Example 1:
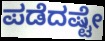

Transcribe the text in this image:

ಪಡೆದಷ್ಟೇ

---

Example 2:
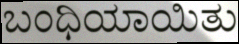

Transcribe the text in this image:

ಬಂಧಿಯಾಯಿತು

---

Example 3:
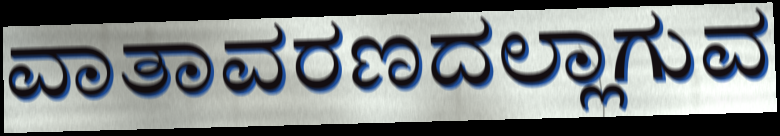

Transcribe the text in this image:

ವಾತಾವರಣದಲ್ಲಾಗುವ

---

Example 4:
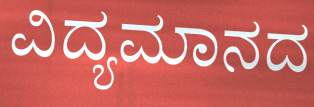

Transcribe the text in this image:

ವಿದ್ಯಮಾನದ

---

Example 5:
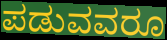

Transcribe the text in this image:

ಪಡುವವರೂ